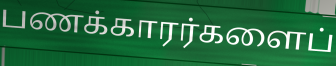
பணக்காரர்களைப்